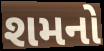
શમનો